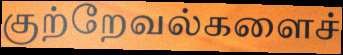
குற்றேவல்களைச்